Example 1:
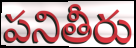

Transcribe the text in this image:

పనితీరు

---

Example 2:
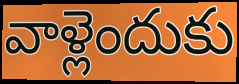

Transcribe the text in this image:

వాళ్లెందుకు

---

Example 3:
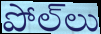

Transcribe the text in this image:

పోల్‌లు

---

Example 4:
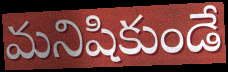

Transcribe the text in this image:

మనిషికుండే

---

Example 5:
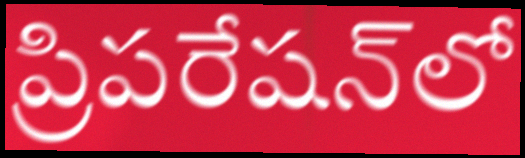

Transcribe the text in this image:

ప్రిపరేషన్‌లో